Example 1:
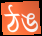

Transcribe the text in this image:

ঠঙ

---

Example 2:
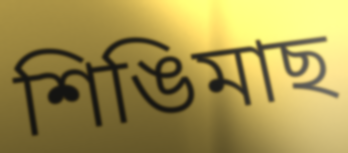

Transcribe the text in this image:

শিঙিমাছ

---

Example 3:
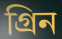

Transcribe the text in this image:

গ্রিন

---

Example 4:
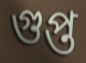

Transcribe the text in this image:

গুপ্ত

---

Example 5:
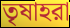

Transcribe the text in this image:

তৃষাহরা